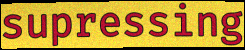
supressing